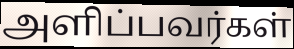
அளிப்பவர்கள்